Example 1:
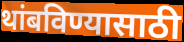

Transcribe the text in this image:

थांबविण्यासाठी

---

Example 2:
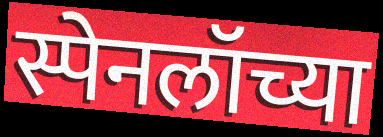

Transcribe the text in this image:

स्पेनलॉच्या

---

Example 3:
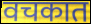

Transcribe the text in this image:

वचकात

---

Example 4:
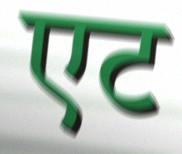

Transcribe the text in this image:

एट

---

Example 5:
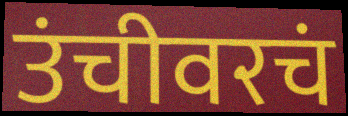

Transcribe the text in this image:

उंचीवरचं